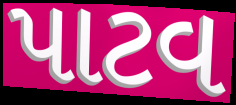
પાટવ